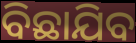
ବିଛାଯିବ